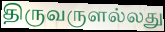
திருவருளல்லது